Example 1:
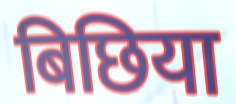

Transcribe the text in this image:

बिछिया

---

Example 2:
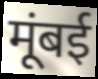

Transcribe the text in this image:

मूंबई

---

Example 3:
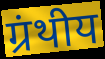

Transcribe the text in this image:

ग्रंथीय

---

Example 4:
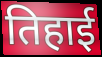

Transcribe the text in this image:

तिहाई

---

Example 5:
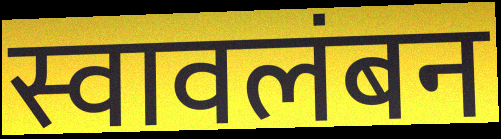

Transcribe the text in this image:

स्वावलंबन